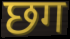
छग